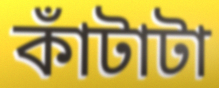
কাঁটাটা